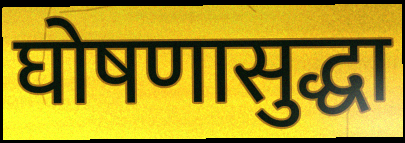
घोषणासुद्धा